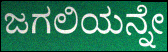
ಜಗಲಿಯನ್ನೇ